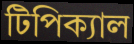
টিপিক্যাল